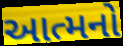
આત્મનો